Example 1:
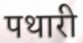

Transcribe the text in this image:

पथारी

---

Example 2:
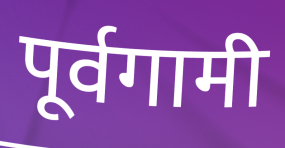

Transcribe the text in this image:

पूर्वगामी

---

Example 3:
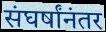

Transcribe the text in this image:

संघर्षांनंतर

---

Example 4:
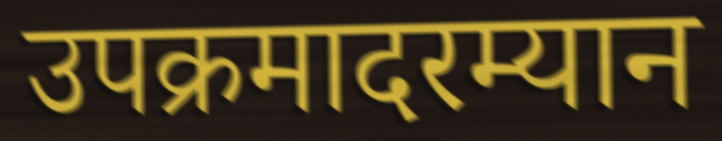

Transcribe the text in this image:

उपक्रमादरम्यान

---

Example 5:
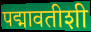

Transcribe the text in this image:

पद्मावतीशी